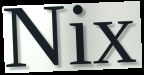
Nix